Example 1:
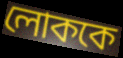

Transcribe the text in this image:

লোককে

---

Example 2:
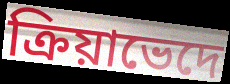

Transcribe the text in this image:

ক্রিয়াভেদে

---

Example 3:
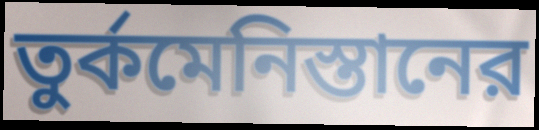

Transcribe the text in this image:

তুর্কমেনিস্তানের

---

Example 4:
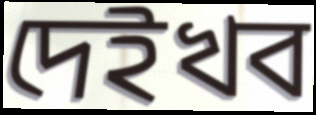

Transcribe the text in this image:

দেইখব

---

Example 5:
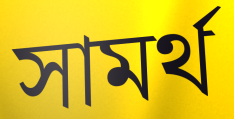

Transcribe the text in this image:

সামর্থ